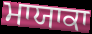
ਮਾਯਾਕਾ